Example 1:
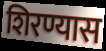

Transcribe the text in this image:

शिरण्यास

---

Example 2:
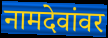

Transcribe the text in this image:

नामदेवांवर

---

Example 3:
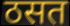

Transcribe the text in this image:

ठसत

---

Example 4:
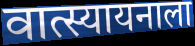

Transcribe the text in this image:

वात्स्यायनाला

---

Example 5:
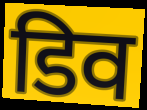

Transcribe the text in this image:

डिव